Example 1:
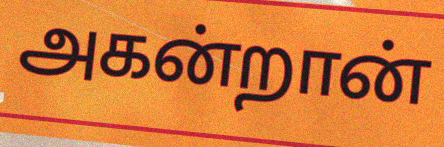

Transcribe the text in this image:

அகன்றான்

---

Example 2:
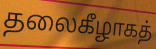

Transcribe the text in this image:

தலைகீழாகத்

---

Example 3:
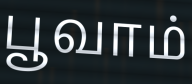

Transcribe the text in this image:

பூவாம்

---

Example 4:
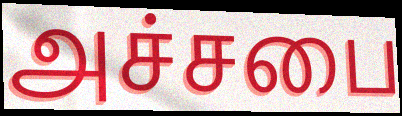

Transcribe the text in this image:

அச்சபை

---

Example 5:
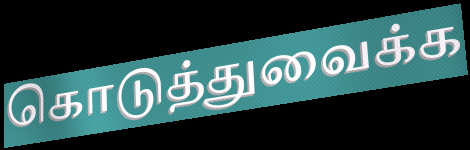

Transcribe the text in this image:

கொடுத்துவைக்க